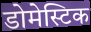
डोमेस्टिक